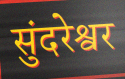
सुंदरेश्वर